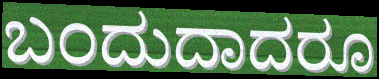
ಬಂದುದಾದರೂ